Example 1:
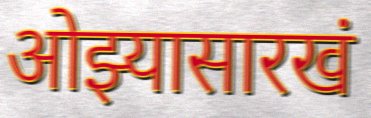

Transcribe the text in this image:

ओझ्यासारखं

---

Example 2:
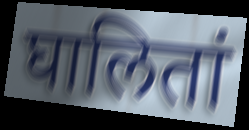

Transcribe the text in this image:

घालितां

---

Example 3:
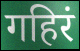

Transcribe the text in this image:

गहिरं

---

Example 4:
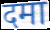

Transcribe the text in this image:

दमा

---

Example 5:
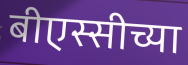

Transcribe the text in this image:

बीएस्सीच्या